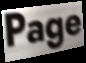
Page